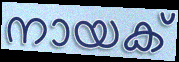
നായക്